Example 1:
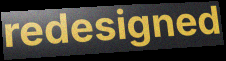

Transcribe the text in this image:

redesigned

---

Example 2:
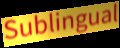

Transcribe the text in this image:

Sublingual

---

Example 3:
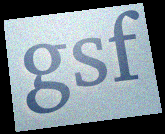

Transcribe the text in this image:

gsf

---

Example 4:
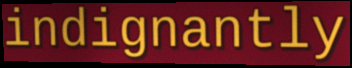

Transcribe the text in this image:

indignantly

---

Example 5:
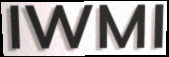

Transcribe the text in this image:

IWMI